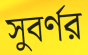
সুবর্ণর